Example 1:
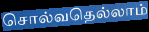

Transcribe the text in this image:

சொல்வதெல்லாம்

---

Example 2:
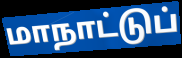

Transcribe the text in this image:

மாநாட்டுப்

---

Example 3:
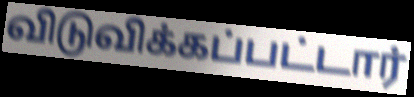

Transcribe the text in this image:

விடுவிக்கப்பட்டார்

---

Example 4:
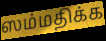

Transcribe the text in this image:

ஸம்மதிக்க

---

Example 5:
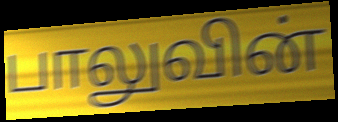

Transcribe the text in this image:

பாலுவின்